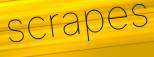
scrapes